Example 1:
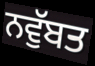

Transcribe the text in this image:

ਨਵੁੱਬਤ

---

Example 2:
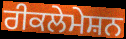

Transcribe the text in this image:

ਰੀਕਲੇਮੇਸ਼ਨ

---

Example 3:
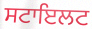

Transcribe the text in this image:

ਸਟਾਇਲਟ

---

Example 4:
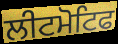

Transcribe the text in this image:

ਲੀਟਮੋਟਿਫ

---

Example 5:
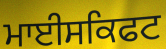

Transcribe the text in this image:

ਮਾਈਸਕਿਫਟ